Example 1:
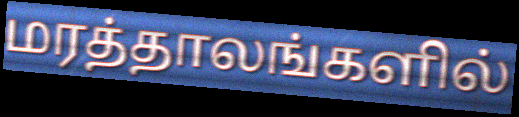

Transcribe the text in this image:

மரத்தாலங்களில்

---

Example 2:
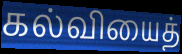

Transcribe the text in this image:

கல்வியைத்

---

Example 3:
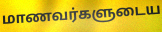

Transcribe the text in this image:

மாணவர்களுடைய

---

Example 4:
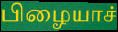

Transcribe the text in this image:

பிழையாச்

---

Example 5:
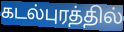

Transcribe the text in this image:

கடல்புரத்தில்